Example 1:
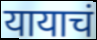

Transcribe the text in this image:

यायाचं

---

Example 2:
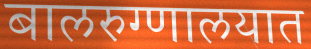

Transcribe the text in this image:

बालरुग्णालयात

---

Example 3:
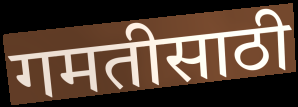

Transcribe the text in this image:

गमतीसाठी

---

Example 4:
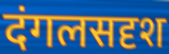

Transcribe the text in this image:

दंगलसदृश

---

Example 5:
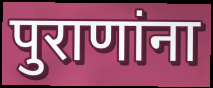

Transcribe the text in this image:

पुराणांना